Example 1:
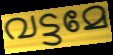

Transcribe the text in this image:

വട്ടമേ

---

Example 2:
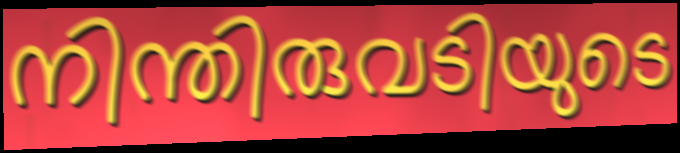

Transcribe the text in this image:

നിന്തിരുവടിയുടെ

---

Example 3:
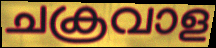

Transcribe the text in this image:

ചക്രവാള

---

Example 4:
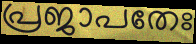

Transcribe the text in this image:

പ്രജാപതേഃ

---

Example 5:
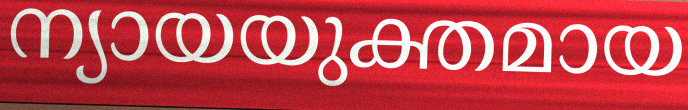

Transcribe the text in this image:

ന്യായയുക്തമായ